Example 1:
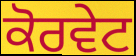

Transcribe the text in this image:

ਕੋਰਵੇਟ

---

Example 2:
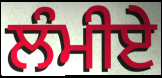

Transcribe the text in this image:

ਲੰਮੀਏ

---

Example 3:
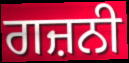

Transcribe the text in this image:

ਗਜ਼ਨੀ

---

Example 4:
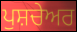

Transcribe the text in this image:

ਪੁਸ਼ਚੇਅਰ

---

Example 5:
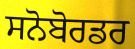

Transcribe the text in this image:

ਸਨੋਬੋਰਡਰ